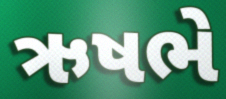
ઋષભે